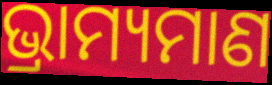
ଭ୍ରାମ୍ୟମାଣ